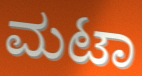
ಮಟಾ